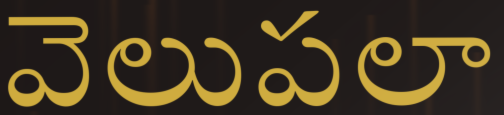
వెలుపలా